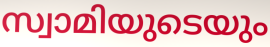
സ്വാമിയുടെയും